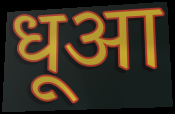
धूआ